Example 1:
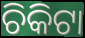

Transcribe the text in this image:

ଚିକିଟା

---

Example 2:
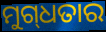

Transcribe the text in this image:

ମୁଗ୍‍ଧତାର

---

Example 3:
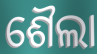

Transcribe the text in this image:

ଶୈଲା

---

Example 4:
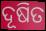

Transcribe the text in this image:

ଦୂଷିତ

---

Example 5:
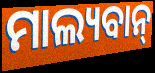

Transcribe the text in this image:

ମାଲ୍ୟବାନ୍